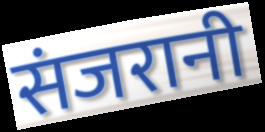
संजरानी